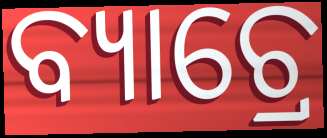
ବ୍ୟାଚ୍ରେ